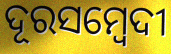
ଦୂରସମ୍ବେଦୀ